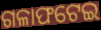
ଗଳାଫଟେଇ